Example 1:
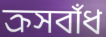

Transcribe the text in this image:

ক্রসবাঁধ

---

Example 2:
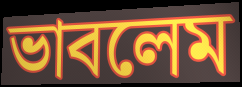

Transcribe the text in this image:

ভাবলেম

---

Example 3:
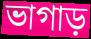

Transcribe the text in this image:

ভাগাড়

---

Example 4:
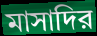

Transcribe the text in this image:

মাসাদির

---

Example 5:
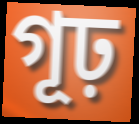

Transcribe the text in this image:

গূঢ়